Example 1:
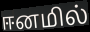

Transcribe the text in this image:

ஈனமில்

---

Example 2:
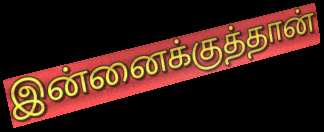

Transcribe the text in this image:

இன்னைக்குத்தான்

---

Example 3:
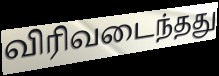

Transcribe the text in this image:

விரிவடைந்தது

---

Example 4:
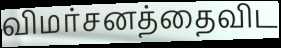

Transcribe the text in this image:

விமர்சனத்தைவிட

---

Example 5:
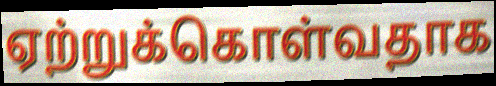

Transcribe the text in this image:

ஏற்றுக்கொள்வதாக